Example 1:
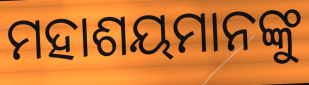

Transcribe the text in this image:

ମହାଶୟମାନଙ୍କୁ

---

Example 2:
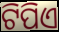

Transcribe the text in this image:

ଟିପିଏ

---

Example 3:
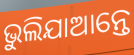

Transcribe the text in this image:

ଭୁଲିଯାଆନ୍ତେ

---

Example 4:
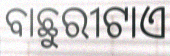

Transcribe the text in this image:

ବାଛୁରୀଟାଏ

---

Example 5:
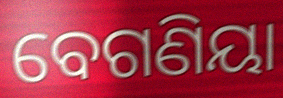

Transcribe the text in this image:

ବେଗଣିୟା